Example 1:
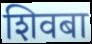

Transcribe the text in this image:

शिवबा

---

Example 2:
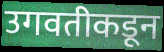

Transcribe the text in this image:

उगवतीकडून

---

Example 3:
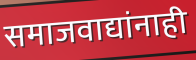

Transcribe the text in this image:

समाजवाद्यांनाही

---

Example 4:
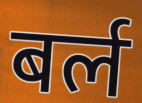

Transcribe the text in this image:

बर्ल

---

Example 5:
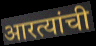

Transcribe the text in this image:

आरत्यांची